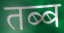
तब्ब